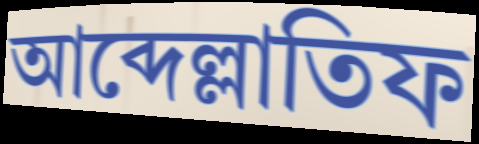
আব্দেল্লাতিফ